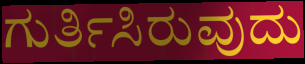
ಗುರ್ತಿಸಿರುವುದು